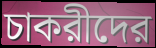
চাকরীদের